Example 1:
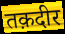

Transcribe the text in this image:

तक़दीर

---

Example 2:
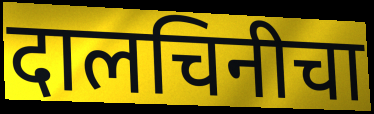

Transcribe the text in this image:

दालचिनीचा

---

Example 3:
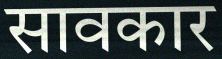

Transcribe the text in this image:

सावकार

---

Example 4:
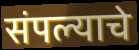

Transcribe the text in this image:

संपल्याचे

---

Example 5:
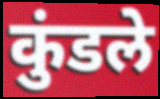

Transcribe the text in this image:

कुंडले